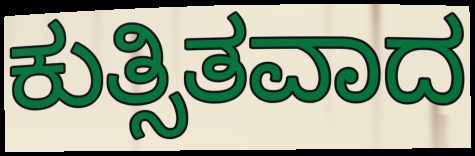
ಕುತ್ಸಿತವಾದ